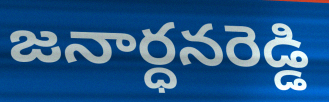
జనార్ధనరెడ్డి